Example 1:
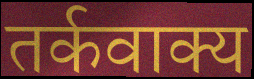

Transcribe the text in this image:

तर्कवाक्य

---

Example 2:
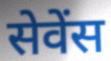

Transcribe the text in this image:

सेवेंस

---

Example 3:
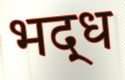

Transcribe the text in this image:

भद्ध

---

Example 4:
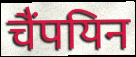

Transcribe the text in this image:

चैंपयिन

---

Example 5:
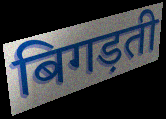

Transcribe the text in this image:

बिगड़ती